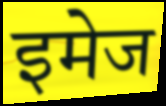
इमेज